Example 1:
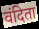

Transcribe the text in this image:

वंदिता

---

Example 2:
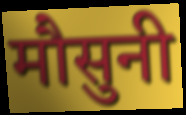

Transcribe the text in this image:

मौसुनी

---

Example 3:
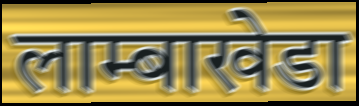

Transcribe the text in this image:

लाम्बाखेडा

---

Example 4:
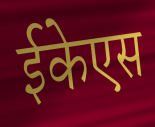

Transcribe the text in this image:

ईकेएस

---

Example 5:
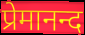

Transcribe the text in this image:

प्रेमानन्द